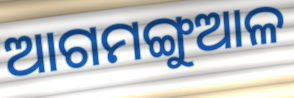
ଆଗମଙ୍ଗୁଆଳ